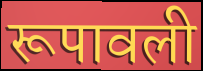
रूपावली